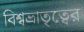
বিশ্বভ্রাতৃত্বের